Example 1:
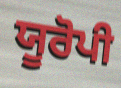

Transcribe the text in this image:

ਯੂਰੋਪੀ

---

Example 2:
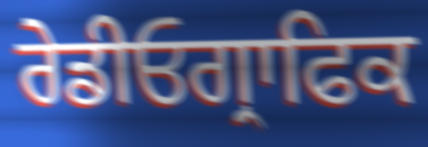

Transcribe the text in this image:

ਰੇਡੀਓਗ੍ਰਾਫਿਕ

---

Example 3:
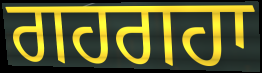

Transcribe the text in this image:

ਗਹਗਹਾ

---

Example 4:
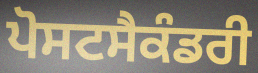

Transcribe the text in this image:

ਪੋਸਟਸੈਕੰਡਰੀ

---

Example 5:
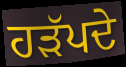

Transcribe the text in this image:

ਹੜੱਪਦੇ